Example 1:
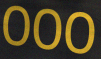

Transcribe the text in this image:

OOO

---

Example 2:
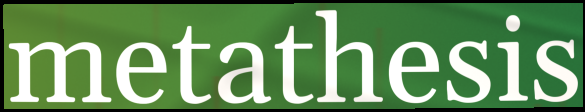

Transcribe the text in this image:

metathesis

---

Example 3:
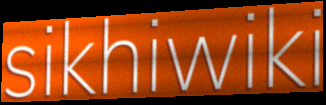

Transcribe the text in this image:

sikhiwiki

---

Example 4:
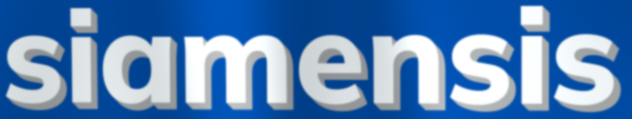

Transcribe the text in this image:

siamensis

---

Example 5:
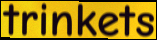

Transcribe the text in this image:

trinkets